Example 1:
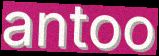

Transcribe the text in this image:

antoo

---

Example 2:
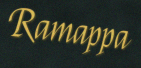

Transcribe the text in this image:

Ramappa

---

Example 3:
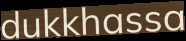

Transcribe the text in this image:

dukkhassa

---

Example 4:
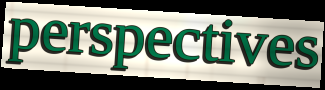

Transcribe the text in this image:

perspectives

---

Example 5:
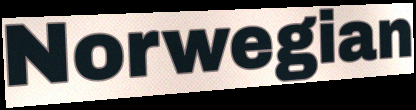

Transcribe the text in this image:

Norwegian